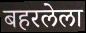
बहरलेला